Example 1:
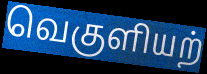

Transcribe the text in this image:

வெகுளியற்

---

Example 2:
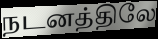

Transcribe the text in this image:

நடனத்திலே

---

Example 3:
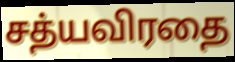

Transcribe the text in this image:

சத்யவிரதை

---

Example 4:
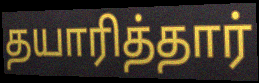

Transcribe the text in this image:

தயாரித்தார்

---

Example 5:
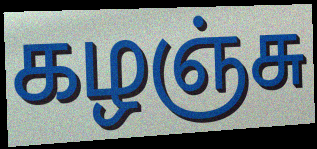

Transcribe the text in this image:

கழஞ்சு